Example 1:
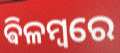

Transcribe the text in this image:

ଵିଳମ୍ବରେ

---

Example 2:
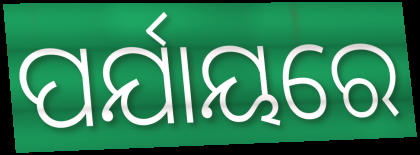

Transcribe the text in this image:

ପର୍ଯାୟରେ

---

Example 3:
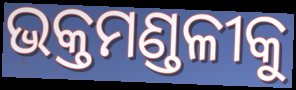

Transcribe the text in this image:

ଭକ୍ତମଣ୍ଡଳୀକୁ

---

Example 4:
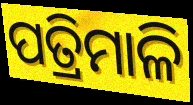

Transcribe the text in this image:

ପତ୍ରିମାଳି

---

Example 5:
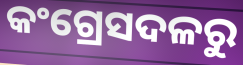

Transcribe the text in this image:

କଂଗ୍ରେସଦଳରୁ